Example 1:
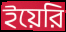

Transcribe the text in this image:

ইয়েরি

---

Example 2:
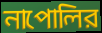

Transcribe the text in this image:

নাপোলির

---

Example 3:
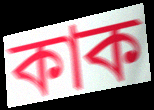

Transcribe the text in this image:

কাক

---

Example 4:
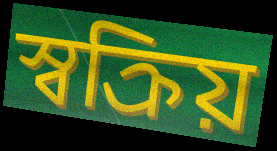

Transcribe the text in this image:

স্বক্রিয়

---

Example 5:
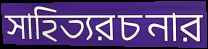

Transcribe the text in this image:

সাহিত্যরচনার